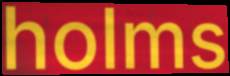
holms